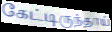
கேட்டிருந்தாய்